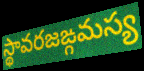
స్థావరజఙ్గమస్య